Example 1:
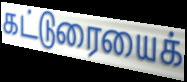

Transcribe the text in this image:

கட்டுரையைக்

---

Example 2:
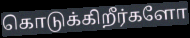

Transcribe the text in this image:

கொடுக்கிறீர்களோ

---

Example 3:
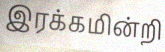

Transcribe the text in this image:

இரக்கமின்றி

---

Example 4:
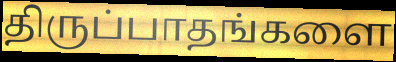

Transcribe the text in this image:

திருப்பாதங்களை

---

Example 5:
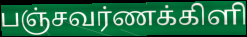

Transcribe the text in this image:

பஞ்சவர்ணக்கிளி